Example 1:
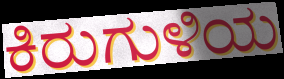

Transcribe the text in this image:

ಕಿರುಗುಳಿಯ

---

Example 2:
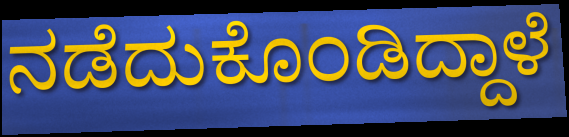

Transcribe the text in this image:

ನಡೆದುಕೊಂಡಿದ್ದಾಳೆ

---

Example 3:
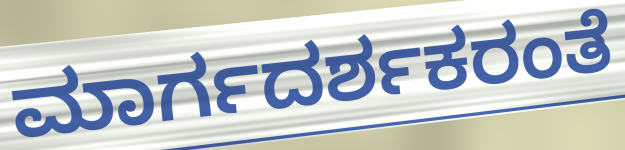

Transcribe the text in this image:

ಮಾರ್ಗದರ್ಶಕರಂತೆ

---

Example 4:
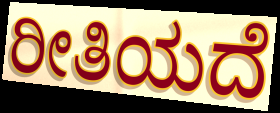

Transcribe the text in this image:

ರೀತಿಯದೆ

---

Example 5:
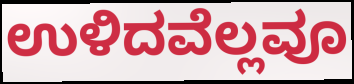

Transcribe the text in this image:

ಉಳಿದವೆಲ್ಲವೂ